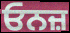
ਓਨਜ਼